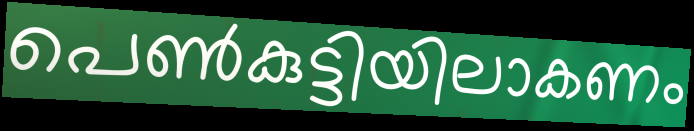
പെൺകുട്ടിയിലാകണം